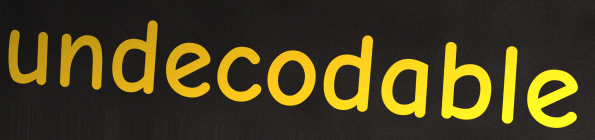
undecodable